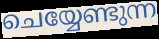
ചെയ്യേണ്ടുന്ന